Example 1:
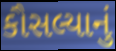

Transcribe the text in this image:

કૌસલ્યાનું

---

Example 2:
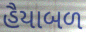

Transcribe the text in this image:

હૈયાબળ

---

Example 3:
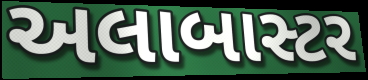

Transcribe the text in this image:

અલાબાસ્ટર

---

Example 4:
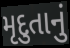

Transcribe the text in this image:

મૃદુતાનું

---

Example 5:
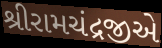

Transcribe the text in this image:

શ્રીરામચંદ્રજીએ